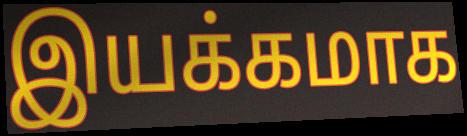
இயக்கமாக